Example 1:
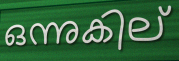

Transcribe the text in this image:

ഒന്നുകില്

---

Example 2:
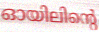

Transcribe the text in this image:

ഓയിലിന്റെ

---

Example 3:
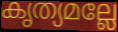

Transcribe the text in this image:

കൃത്യമല്ലേ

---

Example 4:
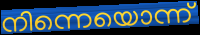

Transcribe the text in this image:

നിന്നെയൊന്ന്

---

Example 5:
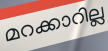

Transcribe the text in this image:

മറക്കാറില്ല